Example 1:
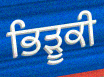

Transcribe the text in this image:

ਭਿੜੂਕੀ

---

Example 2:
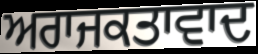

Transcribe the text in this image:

ਅਰਾਜਕਤਾਵਾਦ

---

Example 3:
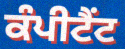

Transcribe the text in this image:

ਕੰਪੀਟੈਂਟ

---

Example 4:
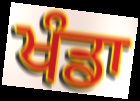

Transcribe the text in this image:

ਖੰਡਾ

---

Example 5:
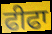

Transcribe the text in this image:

ਫੀਫਾ